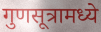
गुणसूत्रामध्ये